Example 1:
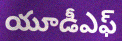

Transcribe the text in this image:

యూడీఎఫ్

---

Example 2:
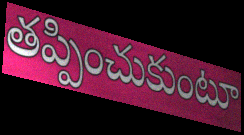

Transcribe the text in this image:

తప్పించుకుంటూ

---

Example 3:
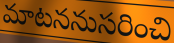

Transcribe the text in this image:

మాటననుసరించి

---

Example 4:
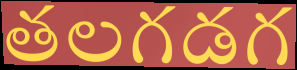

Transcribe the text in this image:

తలగడగ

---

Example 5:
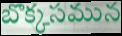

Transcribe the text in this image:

బొక్కసమున